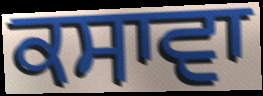
ਕਸਾਵਾ